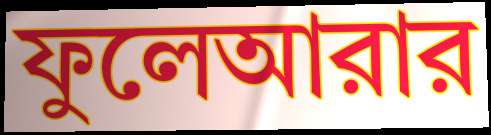
ফুলেআরার